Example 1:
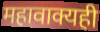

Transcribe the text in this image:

महावाक्यही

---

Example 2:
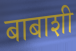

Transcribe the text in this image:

बाबाशी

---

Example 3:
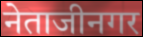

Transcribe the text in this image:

नेताजीनगर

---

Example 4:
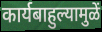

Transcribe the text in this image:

कार्यबाहुल्यामुळें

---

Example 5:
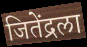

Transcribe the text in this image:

जितेंद्रला